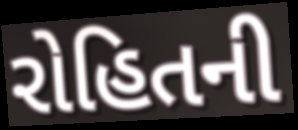
રોહિતની